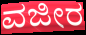
ವಜೀರ